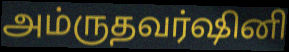
அம்ருதவர்ஷினி